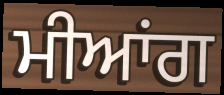
ਮੀਆਂਗ